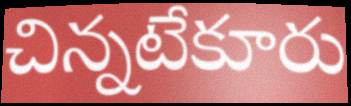
చిన్నటేకూరు